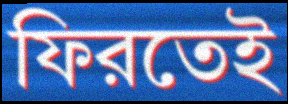
ফিরতেই